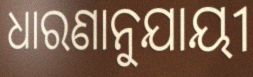
ଧାରଣାନୁଯାୟୀ